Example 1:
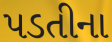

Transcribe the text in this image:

પડતીના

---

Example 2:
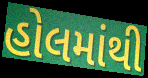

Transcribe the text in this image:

હોલમાંથી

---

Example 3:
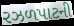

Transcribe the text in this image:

રઝળપાટની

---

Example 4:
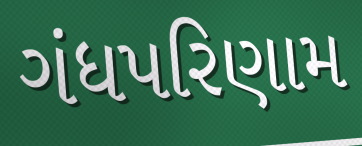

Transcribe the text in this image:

ગંધપરિણામ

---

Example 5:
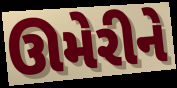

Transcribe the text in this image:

ઊમેરીને